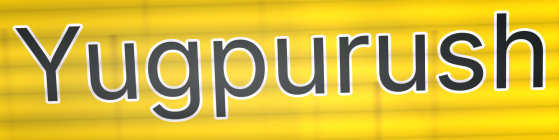
Yugpurush